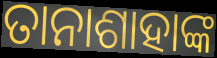
ତାନାଶାହାଙ୍କ